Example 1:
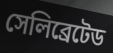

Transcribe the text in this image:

সেলিব্রেটেড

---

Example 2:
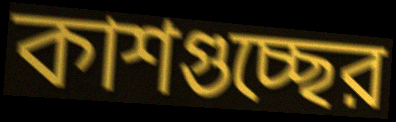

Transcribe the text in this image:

কাশগুচ্ছের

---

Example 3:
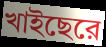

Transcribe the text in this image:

খাইছেরে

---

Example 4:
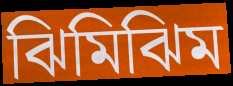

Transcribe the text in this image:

ঝিমিঝিম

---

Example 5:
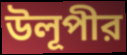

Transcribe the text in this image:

উলূপীর